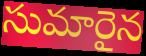
సుమారైన